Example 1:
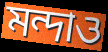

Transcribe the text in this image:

মন্দাও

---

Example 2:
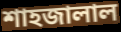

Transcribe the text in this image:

শাহজালাল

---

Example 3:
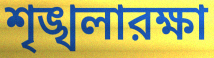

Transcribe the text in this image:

শৃঙ্খলারক্ষা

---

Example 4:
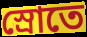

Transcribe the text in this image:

স্রোতে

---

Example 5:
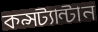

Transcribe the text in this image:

কন্সট্যান্টান